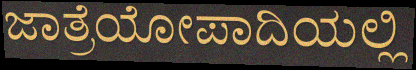
ಜಾತ್ರೆಯೋಪಾದಿಯಲ್ಲಿ